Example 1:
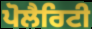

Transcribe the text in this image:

ਪੋਲੈਰਿਟੀ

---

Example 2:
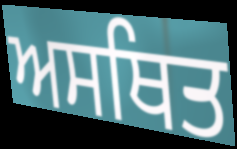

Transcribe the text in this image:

ਅਸਥਿਤ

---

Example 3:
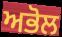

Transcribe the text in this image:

ਅਭੋਲ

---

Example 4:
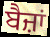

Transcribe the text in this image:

ਬੈਜ਼ਾਂ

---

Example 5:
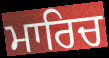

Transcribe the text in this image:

ਮਾਰਿਚ